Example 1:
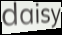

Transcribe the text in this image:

daisy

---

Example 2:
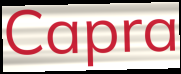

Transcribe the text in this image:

Capra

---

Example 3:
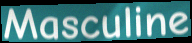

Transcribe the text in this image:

Masculine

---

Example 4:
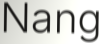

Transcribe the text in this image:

Nang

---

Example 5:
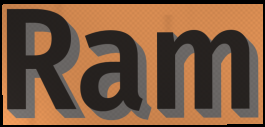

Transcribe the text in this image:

Ram